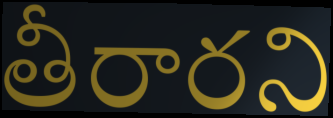
తీరారని